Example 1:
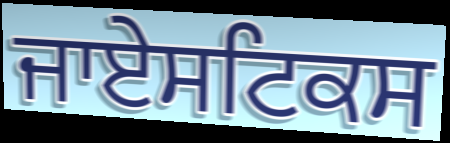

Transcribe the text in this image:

ਜਾਏਸਟਿਕਸ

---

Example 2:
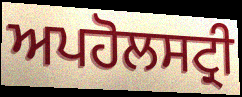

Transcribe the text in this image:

ਅਪਹੋਲਸਟ੍ਰੀ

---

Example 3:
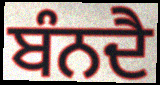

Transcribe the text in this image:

ਬੰਨਦੈ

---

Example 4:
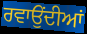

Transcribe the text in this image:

ਰਵਾਉਂਦੀਆਂ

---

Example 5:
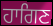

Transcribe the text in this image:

ਹਾਗਿਣ